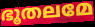
ഭൂതലമേ